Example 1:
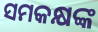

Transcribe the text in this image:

ସମକକ୍ଷଙ୍କ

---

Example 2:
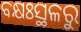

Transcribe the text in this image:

ବକ୍ଷଃସ୍ଥଳରୁ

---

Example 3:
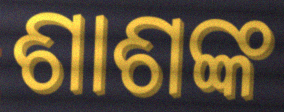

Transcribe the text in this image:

ଶାଶଙ୍କ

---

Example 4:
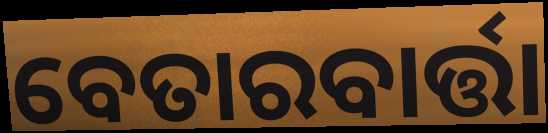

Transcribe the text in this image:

ବେତାରବାର୍ତ୍ତା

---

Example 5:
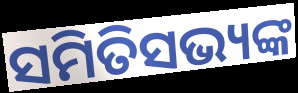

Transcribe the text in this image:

ସମିତିସଭ୍ୟଙ୍କ